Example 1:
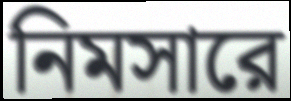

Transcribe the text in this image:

নিমসারে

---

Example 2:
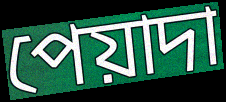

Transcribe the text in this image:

পেয়াদা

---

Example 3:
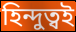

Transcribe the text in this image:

হিন্দুত্বই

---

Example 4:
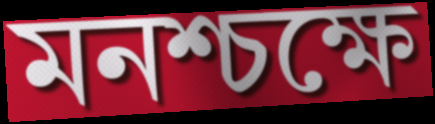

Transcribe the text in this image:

মনশ্চক্ষে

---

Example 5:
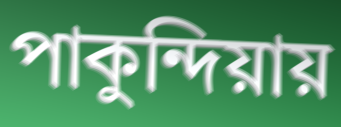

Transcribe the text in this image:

পাকুন্দিয়ায়